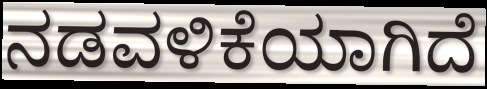
ನಡವಳಿಕೆಯಾಗಿದೆ